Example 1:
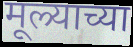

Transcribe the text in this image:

मूल्याच्या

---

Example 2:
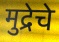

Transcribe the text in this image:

मुद्रेचे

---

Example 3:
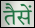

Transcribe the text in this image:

तैसें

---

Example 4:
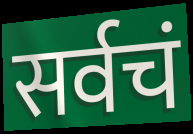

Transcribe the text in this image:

सर्वचं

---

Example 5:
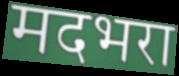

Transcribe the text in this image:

मदभरा